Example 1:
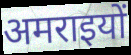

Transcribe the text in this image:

अमराइयों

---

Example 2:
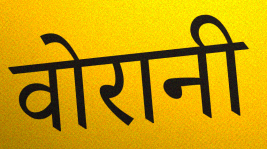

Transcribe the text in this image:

वोरानी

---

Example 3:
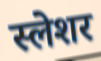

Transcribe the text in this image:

स्लेशर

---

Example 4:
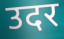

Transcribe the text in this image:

उदर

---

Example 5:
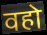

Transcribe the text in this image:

वहो